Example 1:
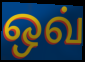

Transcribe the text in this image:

ஒவ்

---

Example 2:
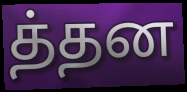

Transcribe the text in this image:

த்தன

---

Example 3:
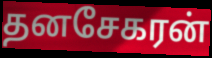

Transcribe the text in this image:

தனசேகரன்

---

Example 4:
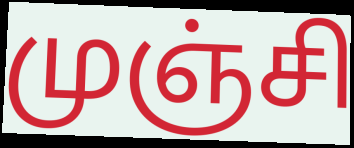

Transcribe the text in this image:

முஞ்சி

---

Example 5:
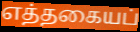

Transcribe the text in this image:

எத்தகையப்